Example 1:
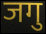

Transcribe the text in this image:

जगु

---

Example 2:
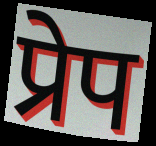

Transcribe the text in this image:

प्रेप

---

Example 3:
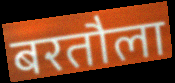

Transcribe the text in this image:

बरतौला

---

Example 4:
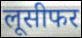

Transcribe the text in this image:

लूसीफर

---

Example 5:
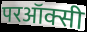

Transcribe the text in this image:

परऑक्सी